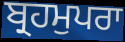
ਬ੍ਰਹਮੁਪਰਾ